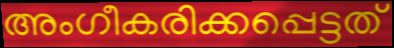
അംഗീകരിക്കപ്പെട്ടത്